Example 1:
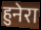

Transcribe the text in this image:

हुनेरा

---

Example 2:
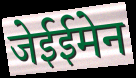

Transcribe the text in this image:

जेईईमेन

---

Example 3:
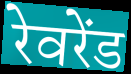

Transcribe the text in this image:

रेवरेंड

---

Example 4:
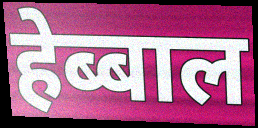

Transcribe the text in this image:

हेब्बाल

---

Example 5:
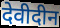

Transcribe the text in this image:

देवीदीन